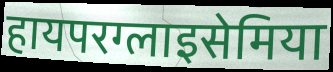
हायपरग्लाइसेमिया